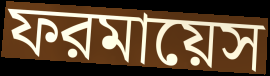
ফরমায়েস